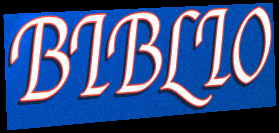
BIBLIO